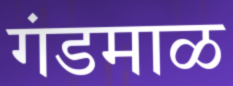
गंडमाळ